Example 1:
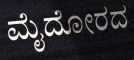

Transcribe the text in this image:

ಮೈದೋರದ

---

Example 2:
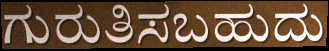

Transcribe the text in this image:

ಗುರುತಿಸಬಹುದು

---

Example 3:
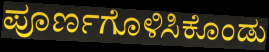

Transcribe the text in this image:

ಪೂರ್ಣಗೊಳಿಸಿಕೊಂಡು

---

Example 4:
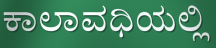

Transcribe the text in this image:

ಕಾಲಾವಧಿಯಲ್ಲಿ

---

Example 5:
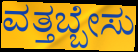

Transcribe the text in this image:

ವತ್ತಬ್ಬೇಸು